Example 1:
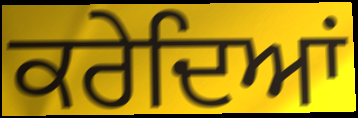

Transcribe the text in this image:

ਕਰੇਦਿਆਂ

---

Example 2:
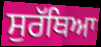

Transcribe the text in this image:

ਸੁਰੱਥਿਆ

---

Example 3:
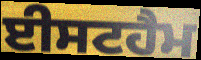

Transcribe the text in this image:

ਈਸਟਹੈਮ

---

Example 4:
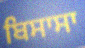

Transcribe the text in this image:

ਬਿਸਾਸਾ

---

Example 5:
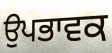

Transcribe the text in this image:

ਉਪਭਾਵਕ